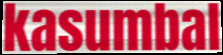
kasumbal